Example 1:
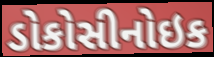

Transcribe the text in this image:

ડોકોસીનોઇક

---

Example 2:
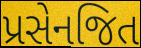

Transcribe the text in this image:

પ્રસેનજિત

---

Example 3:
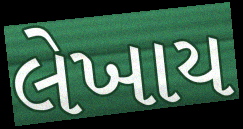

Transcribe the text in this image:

લેખાય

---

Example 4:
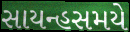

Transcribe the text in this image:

સાયન્હસમયે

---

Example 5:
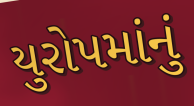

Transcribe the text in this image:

યુરોપમાંનું